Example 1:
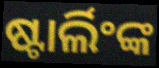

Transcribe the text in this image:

ଷ୍ଟାର୍ଲିଂଙ୍କ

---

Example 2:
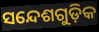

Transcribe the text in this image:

ସନ୍ଦେଶଗୁଡ଼ିକ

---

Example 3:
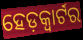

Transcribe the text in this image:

ହେଡ଼କ୍ୱାର୍ଟର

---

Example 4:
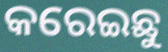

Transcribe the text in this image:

କରେଇଛୁ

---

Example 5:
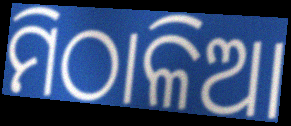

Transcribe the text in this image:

ମିଠାଳିଆ